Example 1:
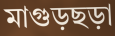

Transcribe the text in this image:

মাগুড়ছড়া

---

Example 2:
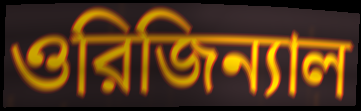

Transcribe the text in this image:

ওরিজিন্যাল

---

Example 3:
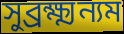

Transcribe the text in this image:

সুব্রক্ষ্মন্যম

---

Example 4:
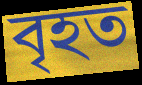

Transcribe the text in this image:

বৃহত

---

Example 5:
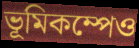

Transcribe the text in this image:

ভূমিকম্পেও